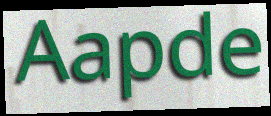
Aapde